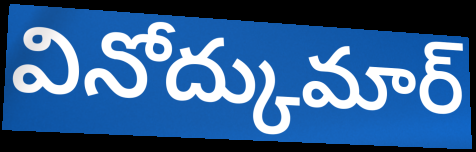
వినోద్కుమార్